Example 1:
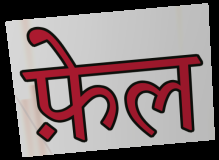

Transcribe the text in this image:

फ़ेल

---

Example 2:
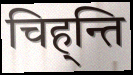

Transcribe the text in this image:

चिह्न्ति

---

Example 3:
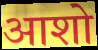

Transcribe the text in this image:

आशो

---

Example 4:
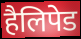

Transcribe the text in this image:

हैलिपेड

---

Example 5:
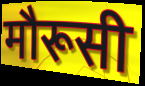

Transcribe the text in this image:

मौरूसी